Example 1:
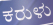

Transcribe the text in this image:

ಕರುಳು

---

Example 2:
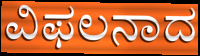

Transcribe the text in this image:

ವಿಫಲನಾದ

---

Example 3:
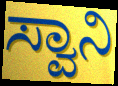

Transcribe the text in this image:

ಸ್ವಾನಿ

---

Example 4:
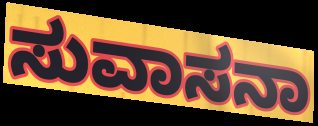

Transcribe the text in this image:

ಸುವಾಸನಾ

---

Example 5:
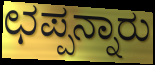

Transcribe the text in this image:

ಛಪ್ಪನ್ನಾರು